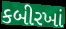
કબીરખાં